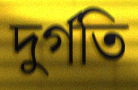
দুর্গতি